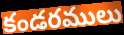
కండరములు